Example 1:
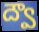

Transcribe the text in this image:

ద్వౌ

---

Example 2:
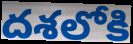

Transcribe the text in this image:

దశలోకి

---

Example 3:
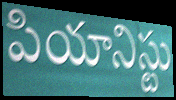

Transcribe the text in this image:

పియానిస్టు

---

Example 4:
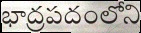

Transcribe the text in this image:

భాద్రపదంలోని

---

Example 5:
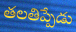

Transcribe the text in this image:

తలతిప్పేడు